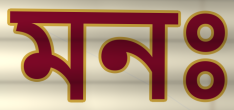
মনঃ